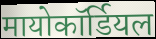
मायोकॉर्डियल